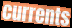
currents